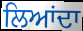
ਲਿਆਂਦਾ